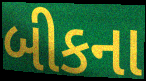
બીકના